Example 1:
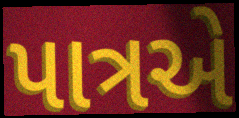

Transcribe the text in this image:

પાત્રએ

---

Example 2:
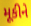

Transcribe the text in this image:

મૂકીને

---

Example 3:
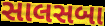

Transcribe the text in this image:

સાલસબા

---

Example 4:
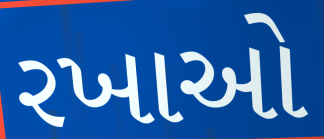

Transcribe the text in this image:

રખાઓ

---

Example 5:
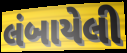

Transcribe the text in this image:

લંબાયેલી